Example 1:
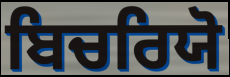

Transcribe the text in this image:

ਬਿਚਰਿਯੋ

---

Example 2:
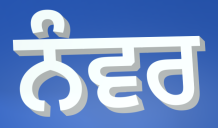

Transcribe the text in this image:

ਨੰਵਰ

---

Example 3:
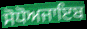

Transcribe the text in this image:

ਸੋਧੋਅਜਾਇਬ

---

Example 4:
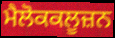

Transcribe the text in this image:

ਮੈਲੋਕਕਲੂਜ਼ਨ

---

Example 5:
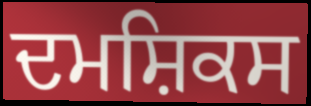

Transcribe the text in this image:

ਦਮਸ਼ਿਕਸ